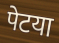
पेटया